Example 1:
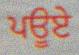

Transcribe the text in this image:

ਪਊਏ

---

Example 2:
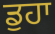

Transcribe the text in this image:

ਡੁਹਾ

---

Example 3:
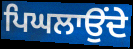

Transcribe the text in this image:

ਪਿਘਲਾਉਂਦੇ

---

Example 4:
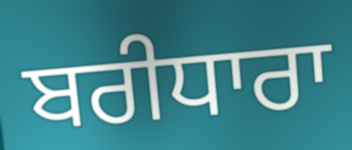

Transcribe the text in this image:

ਬਰੀਧਾਰਾ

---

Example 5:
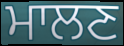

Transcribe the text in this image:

ਮਾਲਣ